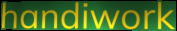
handiwork